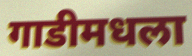
गाडीमधला